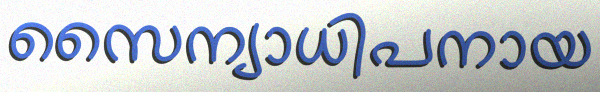
സൈന്യാധിപനായ